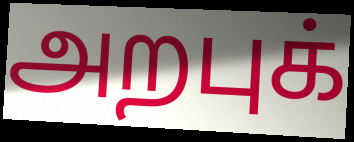
அறபுக்